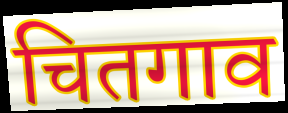
चितगाव